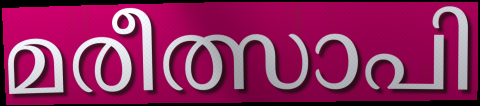
മരീത്സാപി